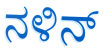
ನಳಿನ್